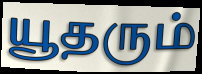
யூதரும்